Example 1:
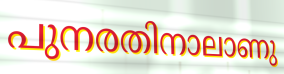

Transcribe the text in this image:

പുനരതിനാലാണു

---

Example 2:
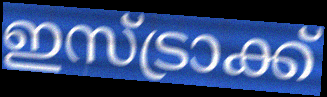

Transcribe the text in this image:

ഇസ്ട്രാക്ക്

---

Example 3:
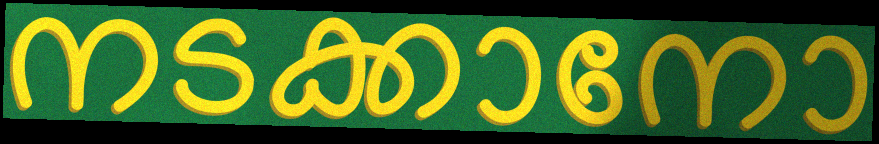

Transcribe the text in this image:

നടക്കാനോ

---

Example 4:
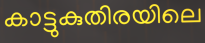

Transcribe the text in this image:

കാട്ടുകുതിരയിലെ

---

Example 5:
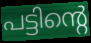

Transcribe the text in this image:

പട്ടിന്റെ